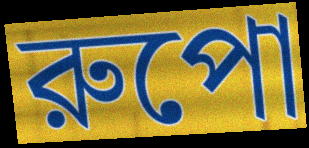
রুপো